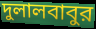
দুলালবাবুর